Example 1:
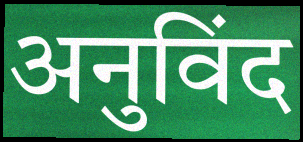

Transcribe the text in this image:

अनुविंद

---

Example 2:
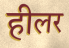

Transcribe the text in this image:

हीलर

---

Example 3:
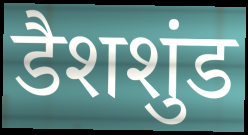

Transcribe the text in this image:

डैशशुंड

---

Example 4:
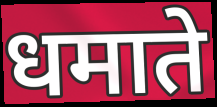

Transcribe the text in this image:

धमाते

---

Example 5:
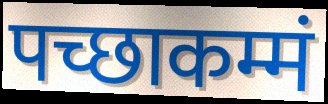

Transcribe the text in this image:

पच्छाकम्मं